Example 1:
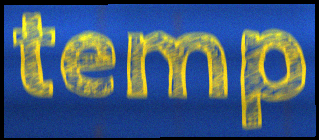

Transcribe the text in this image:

temp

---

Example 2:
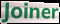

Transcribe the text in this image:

Joiner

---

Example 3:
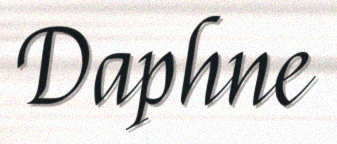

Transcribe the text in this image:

Daphne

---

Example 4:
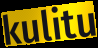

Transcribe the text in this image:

kulitu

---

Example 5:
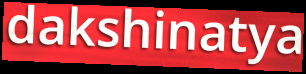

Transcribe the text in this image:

dakshinatya